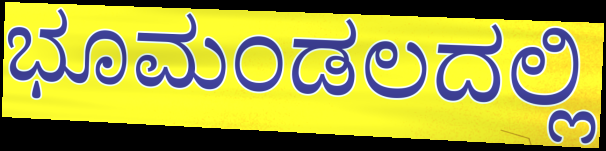
ಭೂಮಂಡಲದಲ್ಲಿ